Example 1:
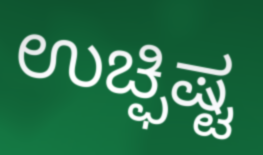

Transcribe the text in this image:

ಉಚ್ಫಿಷ್ಟ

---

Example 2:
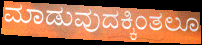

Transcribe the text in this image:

ಮಾಡುವುದಕ್ಕಿಂತಲೂ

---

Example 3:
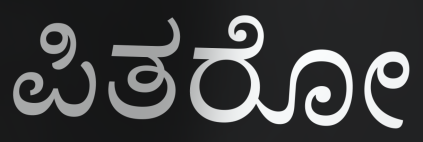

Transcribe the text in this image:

ಪಿತರೋ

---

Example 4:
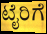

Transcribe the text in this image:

ಟೈರಿಗೆ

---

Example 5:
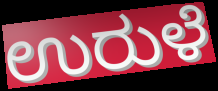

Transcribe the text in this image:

ಉರುಳೆ